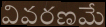
వివరణమే